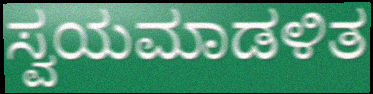
ಸ್ವಯಮಾಡಳಿತ